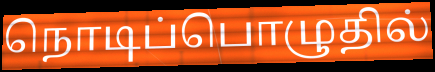
நொடிப்பொழுதில்